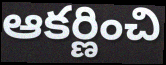
ఆకర్ణించి